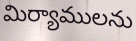
మిర్యాములను